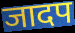
जादप